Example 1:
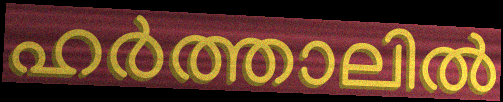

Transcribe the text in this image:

ഹർത്താലിൽ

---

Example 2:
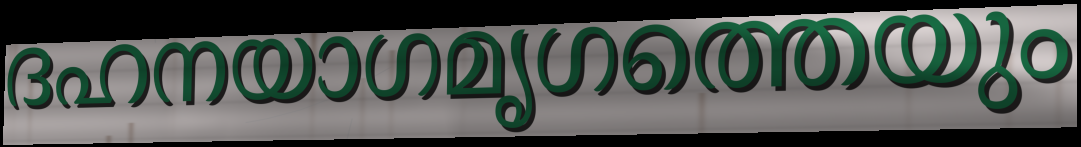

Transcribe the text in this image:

ദഹനയാഗമൃഗത്തെയും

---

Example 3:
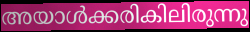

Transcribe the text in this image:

അയാൾക്കരികിലിരുന്നു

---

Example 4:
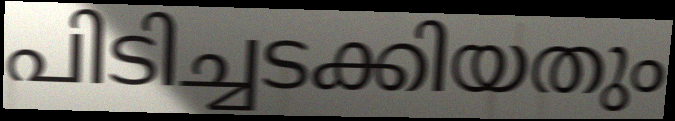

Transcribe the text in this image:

പിടിച്ചടക്കിയതും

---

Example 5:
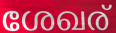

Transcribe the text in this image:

ശേഖര്